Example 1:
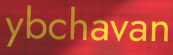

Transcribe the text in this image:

ybchavan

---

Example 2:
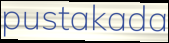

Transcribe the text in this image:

pustakada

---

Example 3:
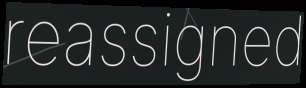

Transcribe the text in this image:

reassigned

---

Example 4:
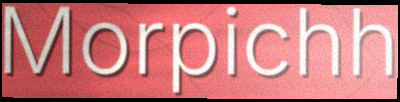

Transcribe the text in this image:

Morpichh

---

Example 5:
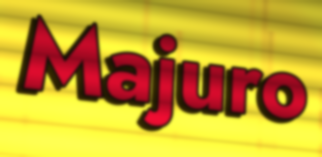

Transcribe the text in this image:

Majuro